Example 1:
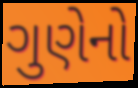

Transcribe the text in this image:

ગુણેનો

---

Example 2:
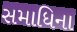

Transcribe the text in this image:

સમાધિના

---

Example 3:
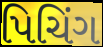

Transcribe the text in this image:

પિચિંગ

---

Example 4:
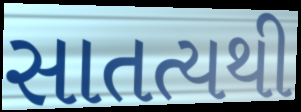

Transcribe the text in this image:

સાતત્યથી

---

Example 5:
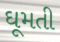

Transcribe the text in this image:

ઘૂમતી